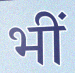
भीं